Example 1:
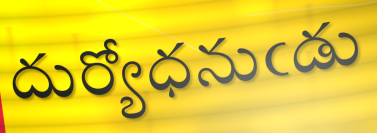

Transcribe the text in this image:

దుర్యోధనుఁడు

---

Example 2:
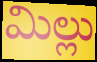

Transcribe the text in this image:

మిల్లు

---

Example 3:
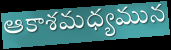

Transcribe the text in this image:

ఆకాశమధ్యమున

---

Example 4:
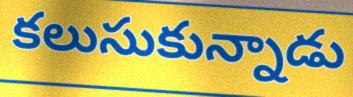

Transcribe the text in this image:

కలుసుకున్నాడు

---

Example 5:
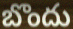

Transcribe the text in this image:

బొందు